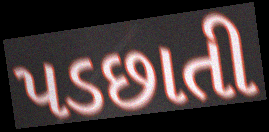
પડછાતી